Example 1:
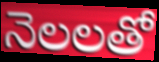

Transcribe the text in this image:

నెలలతో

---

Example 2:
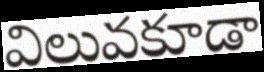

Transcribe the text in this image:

విలువకూడా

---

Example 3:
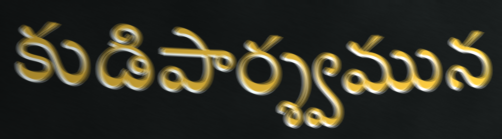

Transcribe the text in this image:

కుడిపార్శ్వమున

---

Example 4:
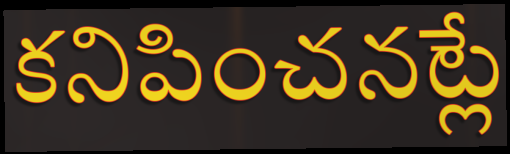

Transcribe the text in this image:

కనిపించనట్లే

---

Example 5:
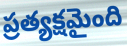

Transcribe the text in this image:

ప్రత్యక్షమైంది